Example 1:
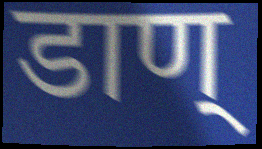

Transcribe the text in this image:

डाण्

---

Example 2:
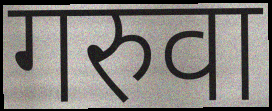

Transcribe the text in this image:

गरुवा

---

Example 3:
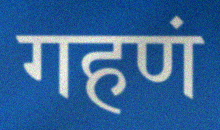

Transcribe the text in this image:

गहणं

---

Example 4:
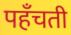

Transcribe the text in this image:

पहँचती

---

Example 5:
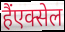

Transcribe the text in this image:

हैंएक्सेल